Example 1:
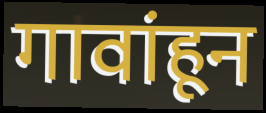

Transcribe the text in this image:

गावांहून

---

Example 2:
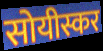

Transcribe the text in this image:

सोयीस्कर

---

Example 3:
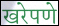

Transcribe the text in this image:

खरेपणे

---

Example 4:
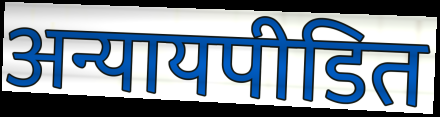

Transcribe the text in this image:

अन्यायपीडित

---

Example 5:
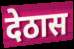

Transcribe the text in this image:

देठास